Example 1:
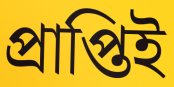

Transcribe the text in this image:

প্রাপ্তিই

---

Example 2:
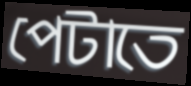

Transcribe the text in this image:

পেটাতে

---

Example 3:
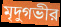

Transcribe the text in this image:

মৃদুগভীর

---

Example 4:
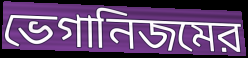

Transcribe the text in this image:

ভেগানিজমের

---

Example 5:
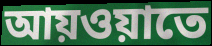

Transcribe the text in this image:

আয়ওয়াতে